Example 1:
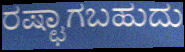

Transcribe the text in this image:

ರಷ್ಟಾಗಬಹುದು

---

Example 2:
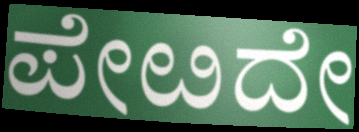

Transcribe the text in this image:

ಪೇೞದೇ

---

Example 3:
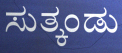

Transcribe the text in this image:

ಸುತ್ಕಂಡು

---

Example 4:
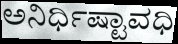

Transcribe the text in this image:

ಅನಿರ್ಧಿಷ್ಟಾವಧಿ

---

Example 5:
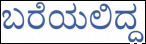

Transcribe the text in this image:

ಬರೆಯಲಿದ್ದ